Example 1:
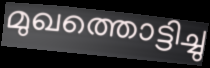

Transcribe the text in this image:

മുഖത്തൊട്ടിച്ചു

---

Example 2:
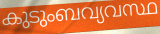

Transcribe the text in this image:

കുടുംബവ്യവസ്ഥ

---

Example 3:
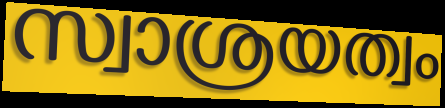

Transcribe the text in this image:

സ്വാശ്രയത്വം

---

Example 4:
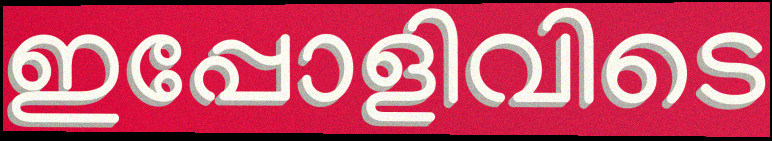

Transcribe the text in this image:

ഇപ്പോളിവിടെ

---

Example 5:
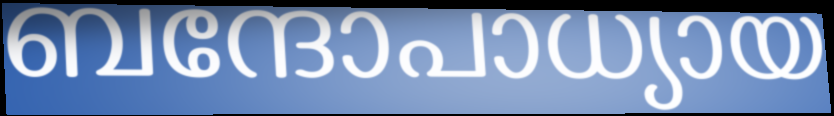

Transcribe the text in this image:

ബന്ദോപാധ്യായ